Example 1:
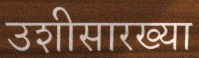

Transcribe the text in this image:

उशीसारख्या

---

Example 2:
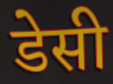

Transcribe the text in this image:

डेसी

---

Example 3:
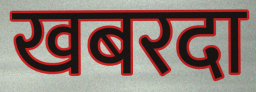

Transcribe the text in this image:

खबरदा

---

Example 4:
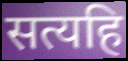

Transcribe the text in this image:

सत्यहि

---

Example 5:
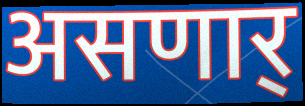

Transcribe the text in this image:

असणार्